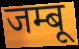
जम्बू